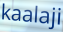
kaalaji